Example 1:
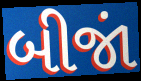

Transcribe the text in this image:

બીજાં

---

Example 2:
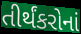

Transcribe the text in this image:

તીર્થંકરોનાં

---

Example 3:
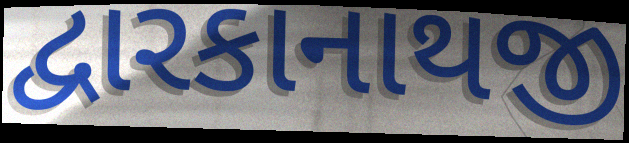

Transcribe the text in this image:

દ્વારકાનાથજી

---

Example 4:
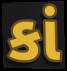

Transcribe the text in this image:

કાં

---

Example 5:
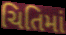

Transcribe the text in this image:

ચિતિમાં